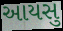
આયસુ